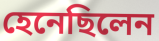
হেনেছিলেন